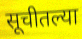
सूचीतल्या